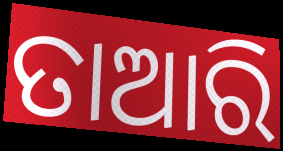
ତାଆରି